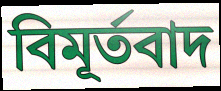
বিমূর্তবাদ